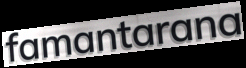
famantarana